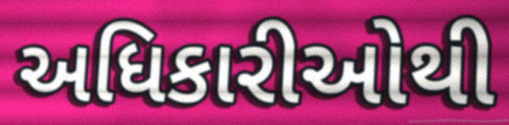
અધિકારીઓથી